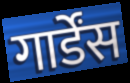
गार्डेंस